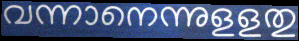
വന്നാനെന്നുളളതു